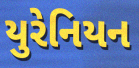
યુરેનિયન